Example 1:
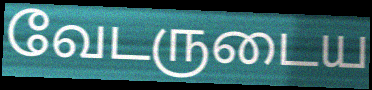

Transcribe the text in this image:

வேடருடைய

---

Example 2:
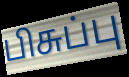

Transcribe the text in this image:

பிசுப்பு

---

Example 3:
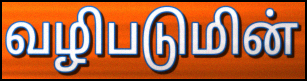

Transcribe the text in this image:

வழிபடுமின்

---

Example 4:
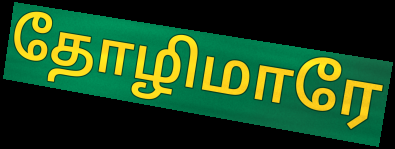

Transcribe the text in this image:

தோழிமாரே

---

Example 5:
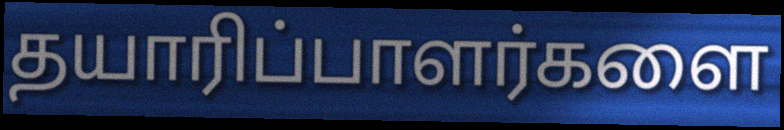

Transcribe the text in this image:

தயாரிப்பாளர்களை